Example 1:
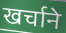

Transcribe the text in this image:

खर्चाने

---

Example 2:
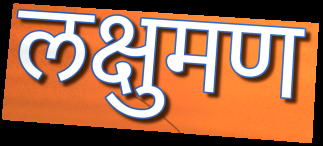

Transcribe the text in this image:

लक्षुमण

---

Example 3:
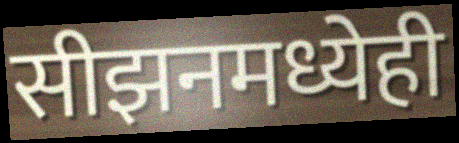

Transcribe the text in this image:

सीझनमध्येही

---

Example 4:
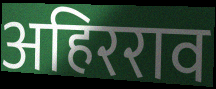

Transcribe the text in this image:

अहिरराव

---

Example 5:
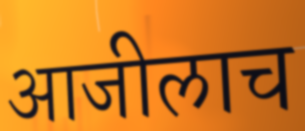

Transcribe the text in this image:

आजीलाच